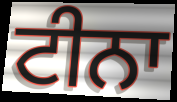
ਟੀਨਾ